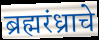
ब्रह्मरंध्राचे